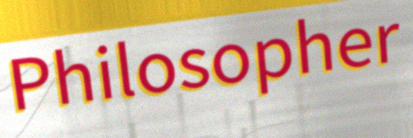
Philosopher